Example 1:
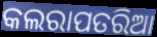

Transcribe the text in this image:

କଲରାପତରିଆ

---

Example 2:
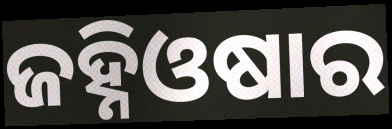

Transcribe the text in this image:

ଜହ୍ନିଓଷାର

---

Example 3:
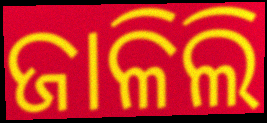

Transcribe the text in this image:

ଜାଳିଲି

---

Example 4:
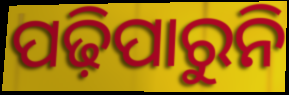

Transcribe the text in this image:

ପଢ଼ିପାରୁନି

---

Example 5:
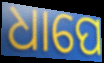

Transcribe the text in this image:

ଧାପେ